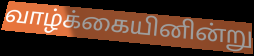
வாழ்க்கையினின்று